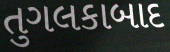
તુગલકાબાદ